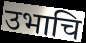
उभाचि